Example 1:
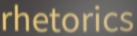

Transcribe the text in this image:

rhetorics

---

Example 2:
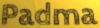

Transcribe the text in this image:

Padma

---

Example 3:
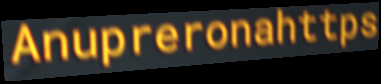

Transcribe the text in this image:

Anupreronahttps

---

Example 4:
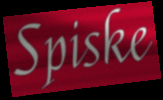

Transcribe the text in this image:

Spiske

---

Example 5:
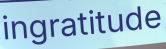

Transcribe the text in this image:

ingratitude